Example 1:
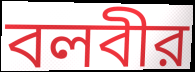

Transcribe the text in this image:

বলবীর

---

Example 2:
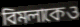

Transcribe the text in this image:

বিমলাকেও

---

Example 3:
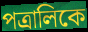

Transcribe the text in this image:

পত্রালিকে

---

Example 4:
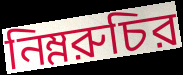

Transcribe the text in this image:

নিম্নরুচির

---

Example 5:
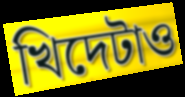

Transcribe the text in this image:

খিদেটাও